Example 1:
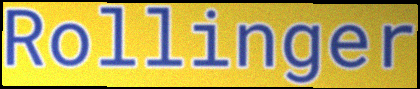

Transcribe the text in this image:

Rollinger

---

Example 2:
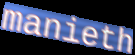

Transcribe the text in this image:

manieth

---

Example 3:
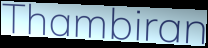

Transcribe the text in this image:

Thambiran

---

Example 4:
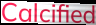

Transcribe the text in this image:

Calcified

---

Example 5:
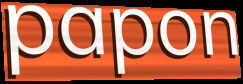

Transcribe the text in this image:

papon